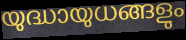
യുദ്ധായുധങ്ങളും